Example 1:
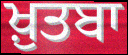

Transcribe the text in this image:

ਖ਼ੁਤਬਾ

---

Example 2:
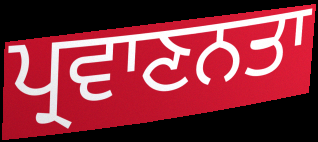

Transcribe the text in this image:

ਪ੍ਰਵਾਣਨਤਾ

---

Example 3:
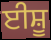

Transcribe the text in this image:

ਈਸ਼ੂ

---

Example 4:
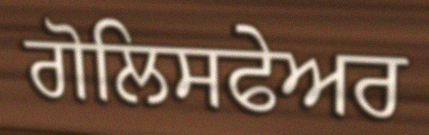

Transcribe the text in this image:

ਗੋਲਿਸਫੇਅਰ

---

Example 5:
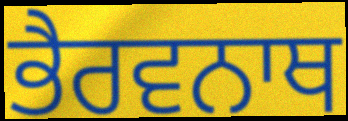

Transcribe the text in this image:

ਭੈਰਵਨਾਥ